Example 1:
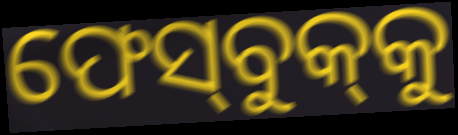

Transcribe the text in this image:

ଫେସ୍‌ବୁକ୍‌କୁ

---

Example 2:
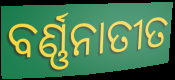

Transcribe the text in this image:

ବର୍ଣ୍ଣନାତୀତ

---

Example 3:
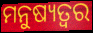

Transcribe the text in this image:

ମନୁଷ୍ୟତ୍ବର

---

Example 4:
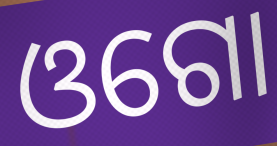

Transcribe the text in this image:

ଓଗୋ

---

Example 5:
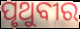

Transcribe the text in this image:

ପୃଥୁବୀର